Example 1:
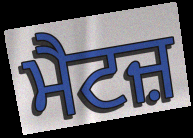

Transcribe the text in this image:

ਮੈਟਜ਼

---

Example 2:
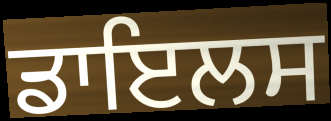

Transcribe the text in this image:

ਡਾਇਲਸ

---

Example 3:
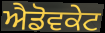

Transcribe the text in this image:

ਐਡੋਵਕੇਟ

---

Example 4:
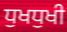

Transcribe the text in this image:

ਧੁਖਧੁਖੀ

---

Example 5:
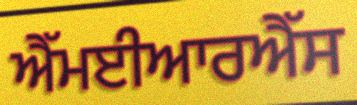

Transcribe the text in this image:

ਐੱਮਈਆਰਐੱਸ